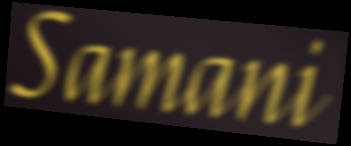
Samani